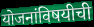
योजनांविषयीची